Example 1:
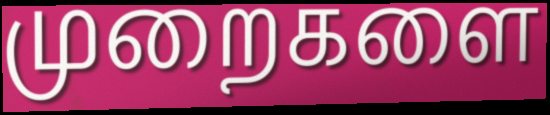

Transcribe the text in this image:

முறைகளை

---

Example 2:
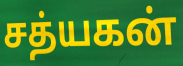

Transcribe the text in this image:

சத்யகன்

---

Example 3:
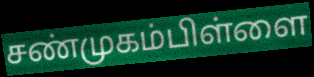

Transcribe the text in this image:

சண்முகம்பிள்ளை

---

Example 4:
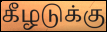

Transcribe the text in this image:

கீழடுக்கு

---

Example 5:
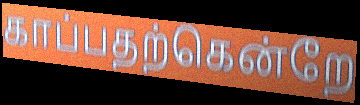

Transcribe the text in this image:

காப்பதற்கென்றே